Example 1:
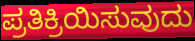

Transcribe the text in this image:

ಪ್ರತಿಕ್ರಿಯಿಸುವುದು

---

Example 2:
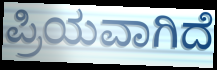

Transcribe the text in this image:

ಪ್ರಿಯವಾಗಿದೆ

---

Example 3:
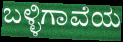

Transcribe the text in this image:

ಬಳ್ಳಿಗಾವೆಯ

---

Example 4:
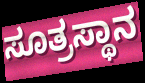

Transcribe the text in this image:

ಸೂತ್ರಸ್ಥಾನ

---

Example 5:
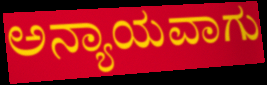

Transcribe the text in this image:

ಅನ್ಯಾಯವಾಗು